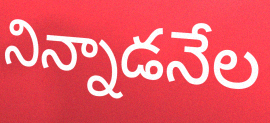
నిన్నాడనేల